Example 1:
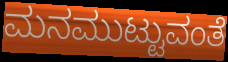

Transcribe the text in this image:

ಮನಮುಟ್ಟುವಂತೆ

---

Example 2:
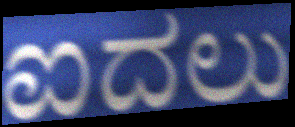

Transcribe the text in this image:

ಐದಲು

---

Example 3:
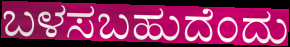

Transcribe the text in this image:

ಬಳಸಬಹುದೆಂದು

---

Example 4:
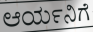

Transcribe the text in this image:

ಆರ್ಯನಿಗೆ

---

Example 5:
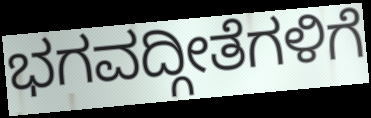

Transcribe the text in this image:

ಭಗವದ್ಗೀತೆಗಳಿಗೆ